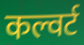
कल्वर्ट